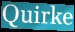
Quirke